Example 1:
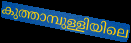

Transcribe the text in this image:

കുത്താമ്പുള്ളിയിലെ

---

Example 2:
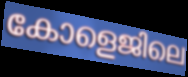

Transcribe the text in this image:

കോളെജിലെ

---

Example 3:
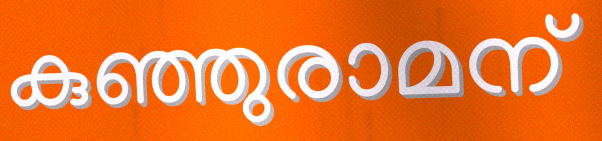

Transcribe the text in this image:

കുഞ്ഞുരാമന്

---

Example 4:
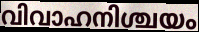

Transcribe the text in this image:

വിവാഹനിശ്ചയം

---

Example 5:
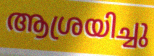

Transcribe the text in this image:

ആശ്രയിച്ചു